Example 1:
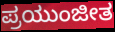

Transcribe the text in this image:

ಪ್ರಯುಂಜೀತ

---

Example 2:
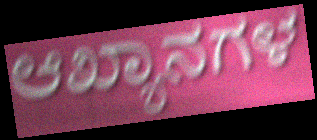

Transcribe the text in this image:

ಆಖ್ಯಾನಗಳ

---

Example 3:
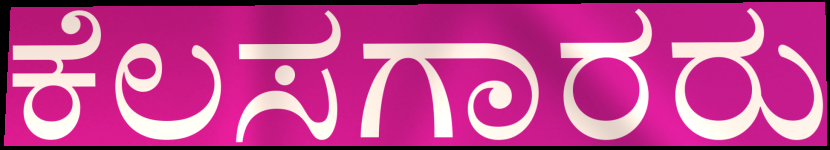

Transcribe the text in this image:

ಕೆಲಸಗಾರರು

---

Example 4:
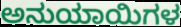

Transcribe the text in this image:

ಅನುಯಾಯಿಗಳ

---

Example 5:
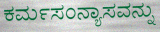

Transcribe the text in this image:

ಕರ್ಮಸಂನ್ಯಾಸವನ್ನು